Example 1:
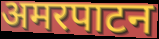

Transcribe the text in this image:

अमरपाटन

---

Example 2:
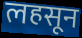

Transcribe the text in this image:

लहसून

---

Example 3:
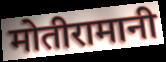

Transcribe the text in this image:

मोतीरामानी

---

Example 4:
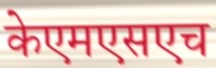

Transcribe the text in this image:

केएमएसएच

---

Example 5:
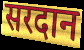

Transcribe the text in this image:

सरदान